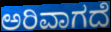
ಅರಿವಾಗದೆ